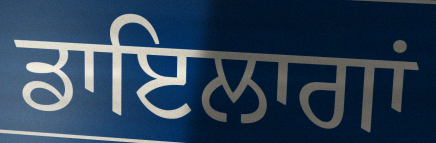
ਡਾਇਲਾਗਾਂ